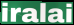
iralai